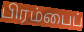
பிரம்பைப்